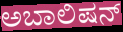
ಅಬಾಲಿಷನ್